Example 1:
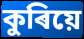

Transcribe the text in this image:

কুৰিয়ে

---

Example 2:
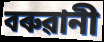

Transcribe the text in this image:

বৰুৱানী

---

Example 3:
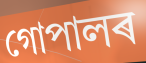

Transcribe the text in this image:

গোপালৰ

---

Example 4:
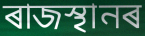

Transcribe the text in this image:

ৰাজস্থানৰ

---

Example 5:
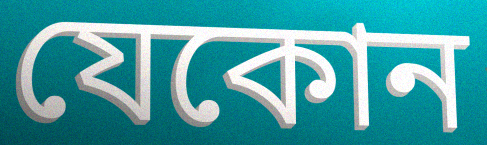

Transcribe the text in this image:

যেকোন